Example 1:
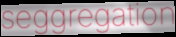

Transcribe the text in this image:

seggregation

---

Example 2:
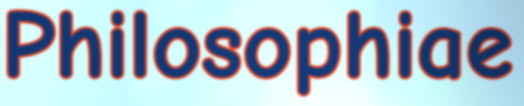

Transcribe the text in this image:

Philosophiae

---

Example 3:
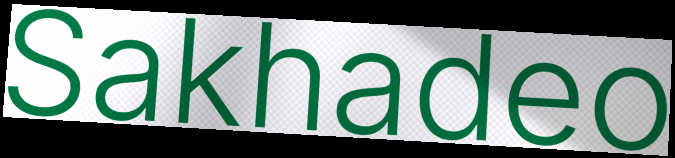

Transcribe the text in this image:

Sakhadeo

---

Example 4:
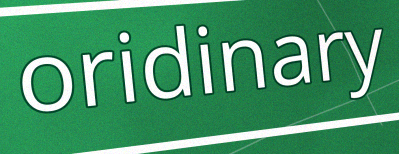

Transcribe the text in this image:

oridinary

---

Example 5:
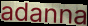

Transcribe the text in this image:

adanna